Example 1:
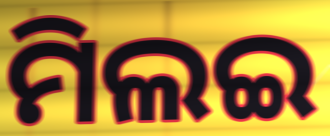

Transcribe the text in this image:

ମିଲଇ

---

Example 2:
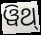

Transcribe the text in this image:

ୱିଥ୍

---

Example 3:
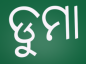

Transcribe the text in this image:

ଡୁମା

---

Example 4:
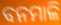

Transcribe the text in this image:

ବନମାଳି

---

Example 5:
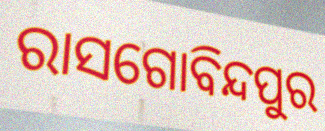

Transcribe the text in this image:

ରାସଗୋବିନ୍ଦପୁର